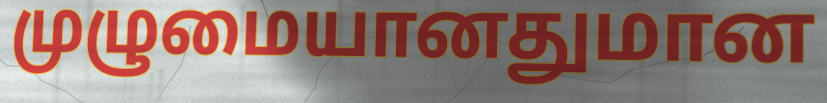
முழுமையானதுமான